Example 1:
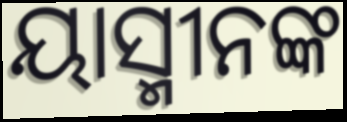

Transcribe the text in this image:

ୟାସ୍ମୀନଙ୍କ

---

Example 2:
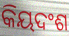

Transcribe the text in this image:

କିୟଦଂଶ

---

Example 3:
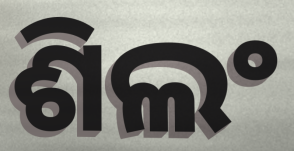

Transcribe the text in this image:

ଶିଲଂ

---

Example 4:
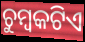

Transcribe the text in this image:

ଚୁମ୍ବକଟିଏ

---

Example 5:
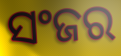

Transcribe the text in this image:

ସଂଜର